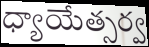
ధ్యాయేత్సర్వ